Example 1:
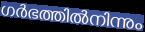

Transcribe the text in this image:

ഗർഭത്തിൽനിന്നും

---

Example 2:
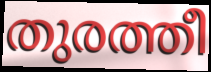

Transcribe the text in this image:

തുരത്തീ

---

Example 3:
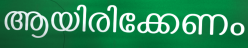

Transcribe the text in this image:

ആയിരിക്കേണം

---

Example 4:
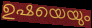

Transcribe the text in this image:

ഉഷയെയും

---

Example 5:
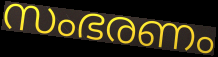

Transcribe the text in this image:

സംഭരണം